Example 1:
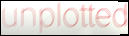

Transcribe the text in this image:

unplotted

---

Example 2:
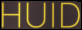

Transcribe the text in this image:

HUID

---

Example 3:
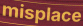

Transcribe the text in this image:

misplace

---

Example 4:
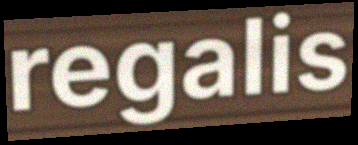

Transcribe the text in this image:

regalis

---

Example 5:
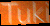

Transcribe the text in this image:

Tuki